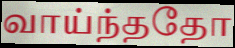
வாய்ந்ததோ